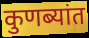
कुणब्यांत